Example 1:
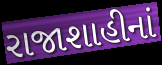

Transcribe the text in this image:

રાજાશાહીનાં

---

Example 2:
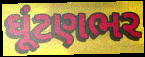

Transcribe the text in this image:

ઘૂંટણભર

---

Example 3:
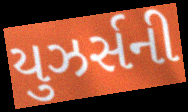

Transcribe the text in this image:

યુઝર્સની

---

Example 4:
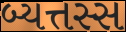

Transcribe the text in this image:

બ્યત્તસ્સ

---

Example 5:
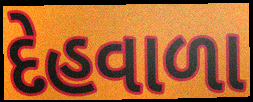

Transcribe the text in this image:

દેહવાળા